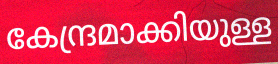
കേന്ദ്രമാക്കിയുള്ള